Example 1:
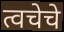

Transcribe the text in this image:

त्वचेचे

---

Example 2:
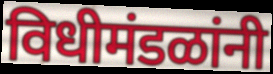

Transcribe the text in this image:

विधीमंडळांनी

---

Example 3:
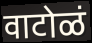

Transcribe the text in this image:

वाटोळं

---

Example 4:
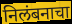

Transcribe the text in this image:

निलंबनाचा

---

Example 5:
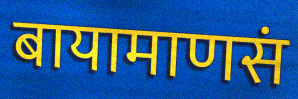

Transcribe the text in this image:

बायामाणसं